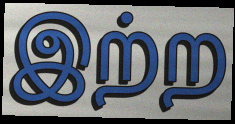
இற்ற